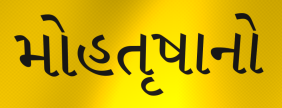
મોહતૃષાનો